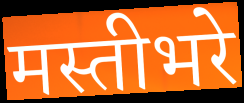
मस्तीभरे